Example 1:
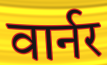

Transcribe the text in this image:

वार्नर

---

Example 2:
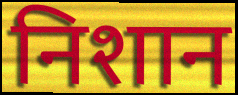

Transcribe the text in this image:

निशान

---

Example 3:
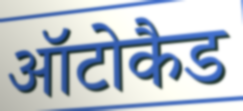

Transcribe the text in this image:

ऑटोकैड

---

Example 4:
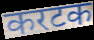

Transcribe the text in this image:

करटक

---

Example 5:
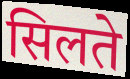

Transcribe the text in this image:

सिलते